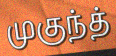
முகுந்த்